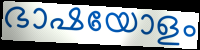
ഭാഷയോളം